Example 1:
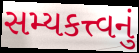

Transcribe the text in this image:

સમ્યકત્ત્વનું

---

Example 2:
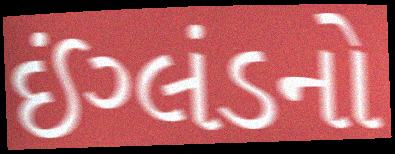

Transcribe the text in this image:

ઈંગ્લંડનો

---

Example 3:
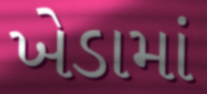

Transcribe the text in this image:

ખેડામાં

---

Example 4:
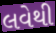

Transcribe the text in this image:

લવેથી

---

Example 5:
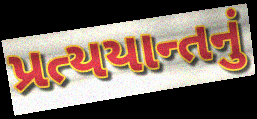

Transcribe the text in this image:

પ્રત્યયાન્તનું